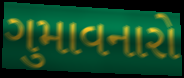
ગુમાવનારો